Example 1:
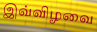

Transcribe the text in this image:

இவ்விழவை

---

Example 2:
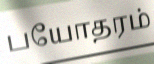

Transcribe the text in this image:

பயோதரம்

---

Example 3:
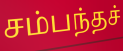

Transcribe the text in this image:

சம்பந்தச்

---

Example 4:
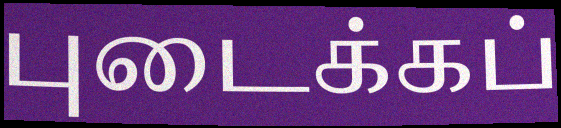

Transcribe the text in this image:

புடைக்கப்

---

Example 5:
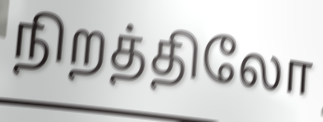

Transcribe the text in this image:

நிறத்திலோ